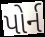
પોર્ન